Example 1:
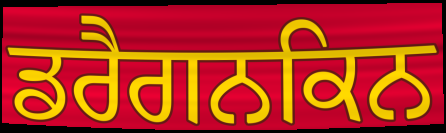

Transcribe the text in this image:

ਡਰੈਗਨਕਿਨ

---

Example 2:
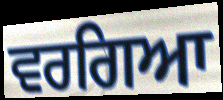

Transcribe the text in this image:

ਵਰਗਿਆ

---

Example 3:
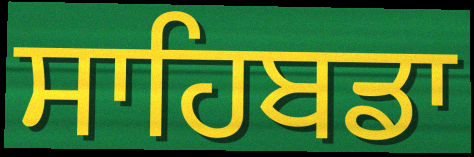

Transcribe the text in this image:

ਸਾਹਿਬਡਾ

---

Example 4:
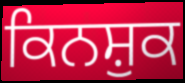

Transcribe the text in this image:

ਕਿਨਸ਼ੁਕ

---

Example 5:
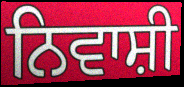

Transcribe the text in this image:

ਨਿਵਾਸ਼ੀ